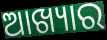
ଆଖ୍ୟାର